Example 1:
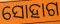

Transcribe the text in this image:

ସୋହାଗ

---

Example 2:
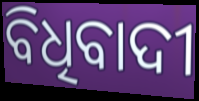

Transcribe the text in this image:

ବିଧିବାଦୀ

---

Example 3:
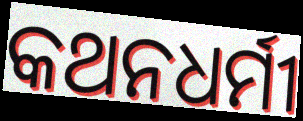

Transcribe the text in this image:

କଥନଧର୍ମୀ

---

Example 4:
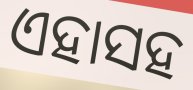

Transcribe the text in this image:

ଏହାସହ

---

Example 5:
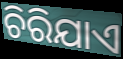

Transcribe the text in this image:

ଚିରିଯାଏ